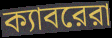
ক্যাবরেরা